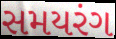
સમયરંગ